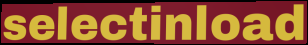
selectinload